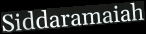
Siddaramaiah